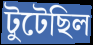
টুটেছিল